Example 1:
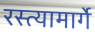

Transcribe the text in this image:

रस्त्यामार्गे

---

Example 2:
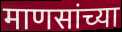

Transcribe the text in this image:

माणसांच्या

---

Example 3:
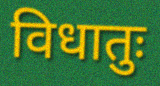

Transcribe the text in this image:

विधातुः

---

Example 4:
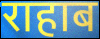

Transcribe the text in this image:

राहाब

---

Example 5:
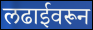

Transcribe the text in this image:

लढाईवरून